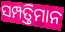
ସମ୍ପତ୍ତିମାନ